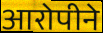
आरोपीने